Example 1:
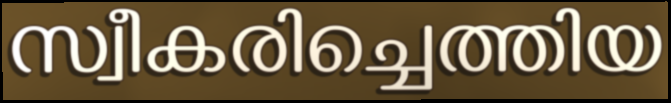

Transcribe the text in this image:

സ്വീകരിച്ചെത്തിയ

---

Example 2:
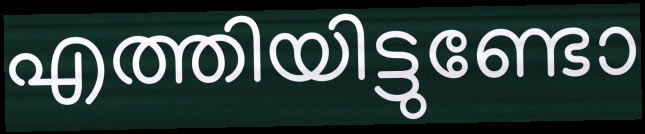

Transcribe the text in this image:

എത്തിയിട്ടുണ്ടോ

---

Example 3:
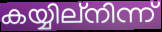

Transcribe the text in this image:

കയ്യില്നിന്ന്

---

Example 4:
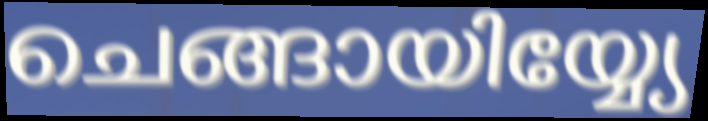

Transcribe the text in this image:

ചെങ്ങായിയ്യ്യേ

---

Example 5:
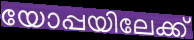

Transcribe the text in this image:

യോപ്പയിലേക്ക്